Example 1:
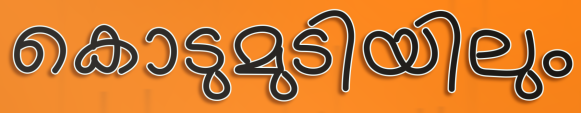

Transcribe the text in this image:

കൊടുമുടിയിലും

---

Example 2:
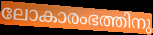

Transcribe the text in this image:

ലോകാരംഭത്തിനു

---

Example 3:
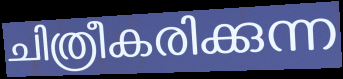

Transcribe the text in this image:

ചിത്രീകരിക്കുന്ന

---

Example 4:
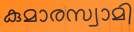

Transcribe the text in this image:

കുമാരസ്വാമി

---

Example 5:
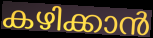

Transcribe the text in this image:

കഴിക്കാൻ